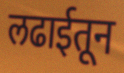
लढाईतून